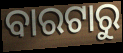
ବାରଟାରୁ